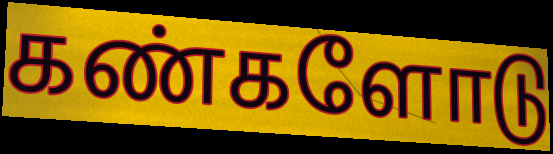
கண்களோடு